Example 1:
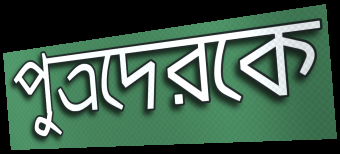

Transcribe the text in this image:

পুত্রদেরকে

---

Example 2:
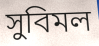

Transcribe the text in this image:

সুবিমল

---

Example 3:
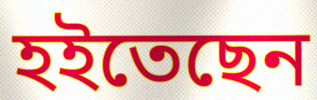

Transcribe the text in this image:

হইতেছেন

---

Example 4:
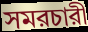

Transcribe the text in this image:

সমরচারী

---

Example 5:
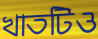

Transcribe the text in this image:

খাতটিও